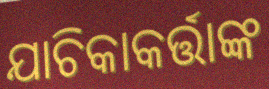
ଯାଚିକାକର୍ତ୍ତାଙ୍କ